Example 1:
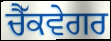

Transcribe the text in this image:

ਚੈੱਕਵੇਗਰ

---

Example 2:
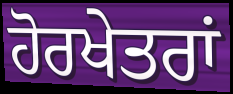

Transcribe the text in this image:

ਹੋਰਖੇਤਰਾਂ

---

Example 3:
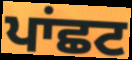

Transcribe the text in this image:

ਪਾਂਛਟ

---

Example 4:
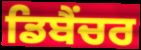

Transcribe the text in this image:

ਡਿਬੈਂਚਰ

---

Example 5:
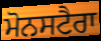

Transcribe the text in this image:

ਮੋਨਸਟੈਰਾ